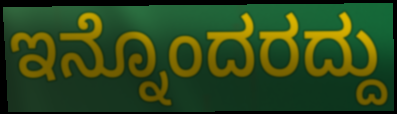
ಇನ್ನೊಂದರದ್ದು